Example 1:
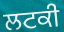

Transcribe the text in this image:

ਲਟਕੀ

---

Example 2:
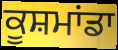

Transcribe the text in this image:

ਕੂਸ਼ਮਾਂਡਾ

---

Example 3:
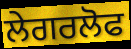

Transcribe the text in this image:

ਲੇਗਰਲੋਫ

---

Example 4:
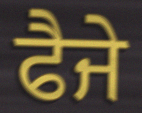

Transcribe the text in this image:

ਫੈਜੇ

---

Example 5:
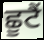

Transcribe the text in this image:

ਛੂਟੈਂ